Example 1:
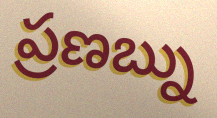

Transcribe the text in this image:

ప్రణబ్ను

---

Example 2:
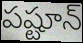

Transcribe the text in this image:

పష్టూన్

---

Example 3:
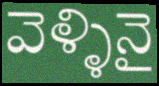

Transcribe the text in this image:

వెళ్ళినై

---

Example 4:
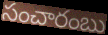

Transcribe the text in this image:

సంచారంబు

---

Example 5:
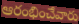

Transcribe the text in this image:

ఆరంభించేవారు